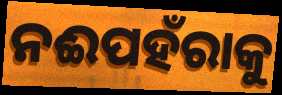
ନଈପହଁରାକୁ